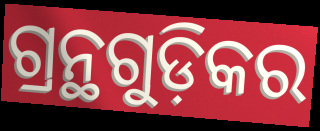
ଗ୍ରନ୍ଥଗୁଡ଼ିକର